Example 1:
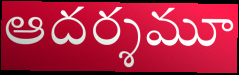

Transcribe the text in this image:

ఆదర్శమూ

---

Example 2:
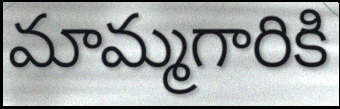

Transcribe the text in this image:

మామ్మగారికి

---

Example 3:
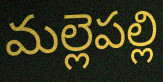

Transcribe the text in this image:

మల్లెపల్లి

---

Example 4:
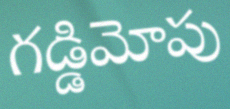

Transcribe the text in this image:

గడ్డిమోపు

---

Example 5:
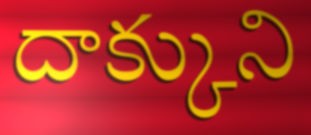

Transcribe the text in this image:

దాక్కుని